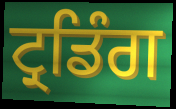
ਟ੍ਰਡਿੰਗ